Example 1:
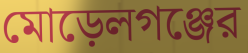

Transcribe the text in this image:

মোড়েলগঞ্জের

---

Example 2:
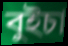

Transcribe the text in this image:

বুইচা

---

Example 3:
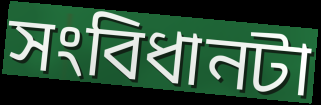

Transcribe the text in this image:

সংবিধানটা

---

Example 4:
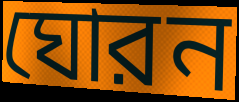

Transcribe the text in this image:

ঘোরন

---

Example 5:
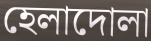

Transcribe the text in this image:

হেলাদোলা